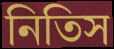
নিতিস